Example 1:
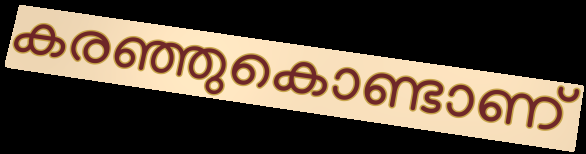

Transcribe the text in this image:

കരഞ്ഞുകൊണ്ടാണ്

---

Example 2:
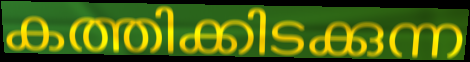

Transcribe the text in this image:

കത്തിക്കിടക്കുന്ന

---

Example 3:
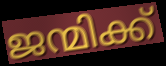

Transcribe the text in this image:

ജന്മിക്ക്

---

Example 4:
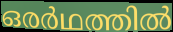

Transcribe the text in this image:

ഒരർഥത്തിൽ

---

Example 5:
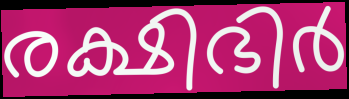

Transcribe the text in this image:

രക്ഷിഭിർ